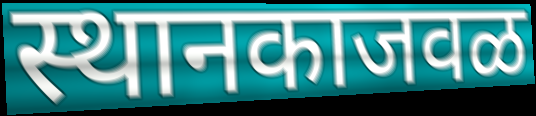
स्थानकाजवळ